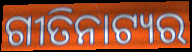
ଗୀତିନାଟ୍ୟର